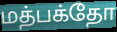
மத்பக்தோ